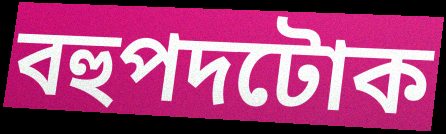
বহুপদটোক